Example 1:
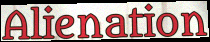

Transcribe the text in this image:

Alienation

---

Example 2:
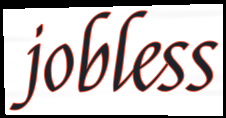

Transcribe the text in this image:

jobless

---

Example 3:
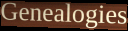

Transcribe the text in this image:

Genealogies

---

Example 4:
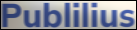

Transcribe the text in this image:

Publilius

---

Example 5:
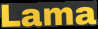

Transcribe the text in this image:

Lama